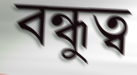
বন্ধুত্ব